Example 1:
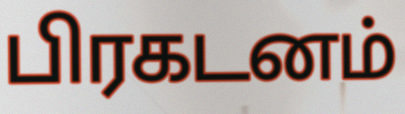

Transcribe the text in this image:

பிரகடனம்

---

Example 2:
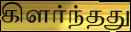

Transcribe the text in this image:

கிளர்ந்தது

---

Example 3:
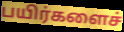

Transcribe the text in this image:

பயிர்களைச்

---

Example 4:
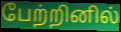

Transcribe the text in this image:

பேற்றினில்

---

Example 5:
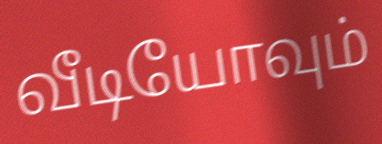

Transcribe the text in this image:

வீடியோவும்